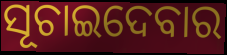
ସୂଚାଇଦେବାର